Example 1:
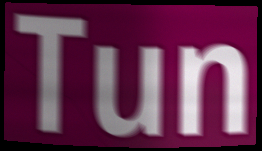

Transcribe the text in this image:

Tun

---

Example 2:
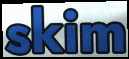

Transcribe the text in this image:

skim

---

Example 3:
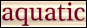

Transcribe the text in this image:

aquatic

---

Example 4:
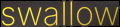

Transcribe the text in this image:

swallow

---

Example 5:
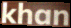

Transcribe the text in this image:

khan